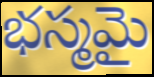
భస్మమై